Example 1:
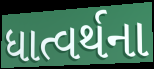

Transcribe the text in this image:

ધાત્વર્થના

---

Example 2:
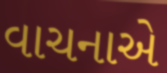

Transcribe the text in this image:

વાચનાએ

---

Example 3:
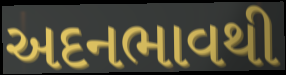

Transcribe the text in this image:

અદનભાવથી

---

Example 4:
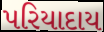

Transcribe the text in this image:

પરિયાદાય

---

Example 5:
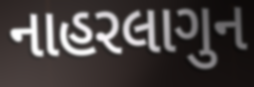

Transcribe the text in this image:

નાહરલાગુન